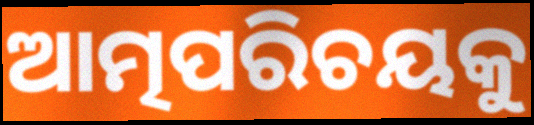
ଆତ୍ମପରିଚୟକୁ